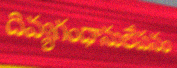
దివ్యగంధానులేపనం